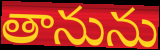
తానును